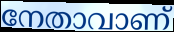
നേതാവാണ്